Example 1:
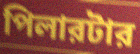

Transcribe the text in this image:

পিলারটার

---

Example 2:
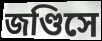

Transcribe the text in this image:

জণ্ডিসে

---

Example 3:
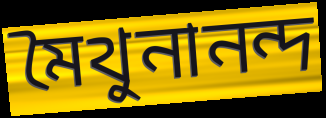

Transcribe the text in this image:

মৈথুনানন্দ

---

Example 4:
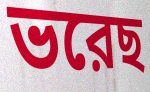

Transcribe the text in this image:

ভরেছ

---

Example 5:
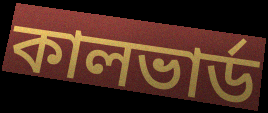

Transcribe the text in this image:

কালভার্ড